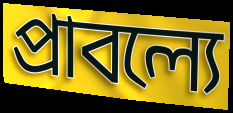
প্রাবল্যে